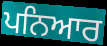
ਪਨਿਆਰ